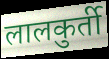
लालकुर्ती